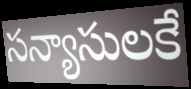
సన్యాసులకే